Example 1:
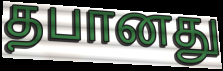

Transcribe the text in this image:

தபானது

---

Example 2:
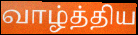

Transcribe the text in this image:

வாழ்த்திய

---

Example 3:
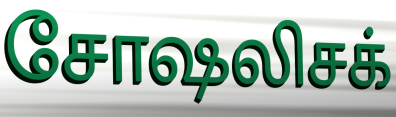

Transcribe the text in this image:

சோஷலிசக்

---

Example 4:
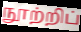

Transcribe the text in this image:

நூற்றிப்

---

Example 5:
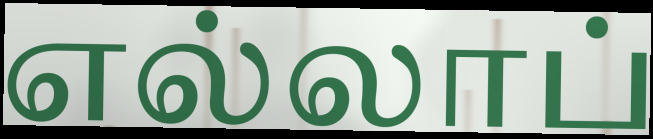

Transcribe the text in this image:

எல்லாப்